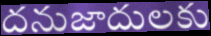
దనుజాదులకు